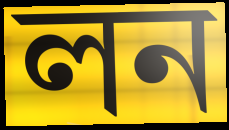
লন